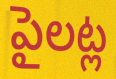
పైలట్ల